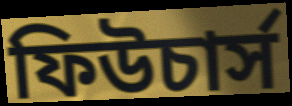
ফিউচার্স